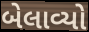
બેલાવ્યો